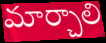
మార్చాలి